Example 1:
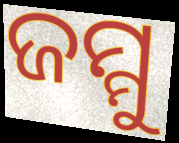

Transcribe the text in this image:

ଜମ୍ମୁ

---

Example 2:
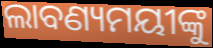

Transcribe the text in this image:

ଲାବଣ୍ୟମୟୀଙ୍କୁ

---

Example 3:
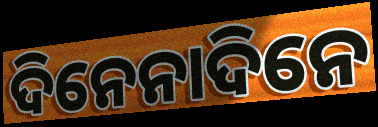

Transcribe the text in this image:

ଦିନେନାଦିନେ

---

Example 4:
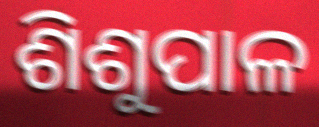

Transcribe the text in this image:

ଶିଶୁପାଳ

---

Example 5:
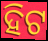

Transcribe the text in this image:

ହିଟ